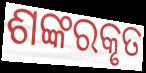
ଶଙ୍କରକୃତ